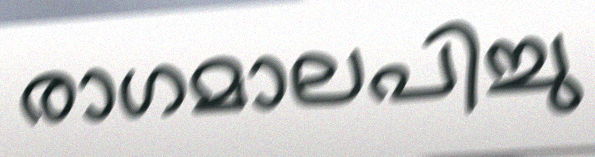
രാഗമാലപിച്ചു